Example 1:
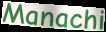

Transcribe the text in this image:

Manachi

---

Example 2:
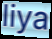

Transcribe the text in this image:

liya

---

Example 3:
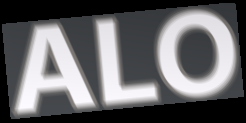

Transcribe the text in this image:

ALO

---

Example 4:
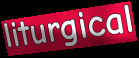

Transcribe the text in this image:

liturgical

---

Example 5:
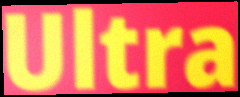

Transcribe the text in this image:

Ultra